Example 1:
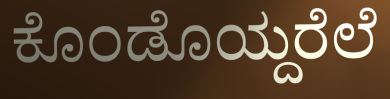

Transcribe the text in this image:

ಕೊಂಡೊಯ್ದರೆಲೆ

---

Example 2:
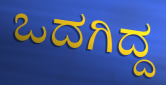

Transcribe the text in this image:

ಒದಗಿದ್ದ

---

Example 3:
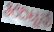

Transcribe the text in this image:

ತೆರೆದಿಟ್ಟವು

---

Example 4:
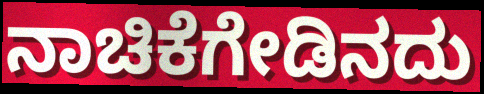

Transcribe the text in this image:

ನಾಚಿಕೆಗೇಡಿನದು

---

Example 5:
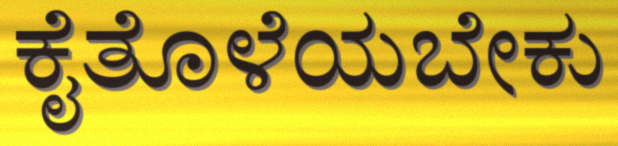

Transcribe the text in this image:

ಕೈತೊಳೆಯಬೇಕು